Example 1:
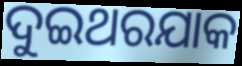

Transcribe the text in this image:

ଦୁଇଥରଯାକ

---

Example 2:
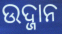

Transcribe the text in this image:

ଉଦ୍ଜାନ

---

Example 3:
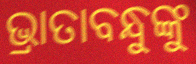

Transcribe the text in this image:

ଭ୍ରାତାବନ୍ଧୁଙ୍କୁ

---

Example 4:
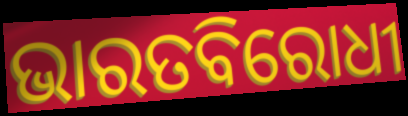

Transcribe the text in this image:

ଭାରତବିରୋଧୀ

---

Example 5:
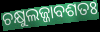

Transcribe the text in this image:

ଚକ୍ଷୁଲଜ୍ଜାବଶତଃ